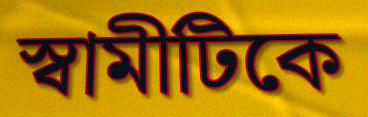
স্বামীটিকে